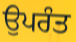
ਉਪਰੰਤ